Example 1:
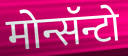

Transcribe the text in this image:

मोन्सॅन्टो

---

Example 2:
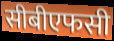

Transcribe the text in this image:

सीबीएफसी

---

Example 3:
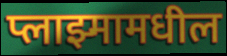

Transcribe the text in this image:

प्लाझ्मामधील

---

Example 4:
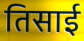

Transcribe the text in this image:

तिसाई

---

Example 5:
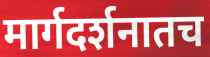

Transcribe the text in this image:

मार्गदर्शनातच